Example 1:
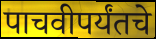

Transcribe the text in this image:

पाचवीपर्यंतचे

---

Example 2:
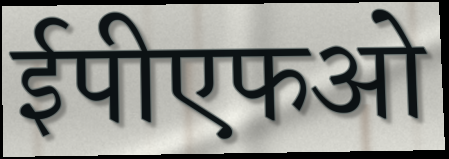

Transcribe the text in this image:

ईपीएफओ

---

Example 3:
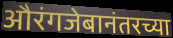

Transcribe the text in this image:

औरंगजेबानंतरच्या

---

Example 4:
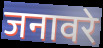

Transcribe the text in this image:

जनावरे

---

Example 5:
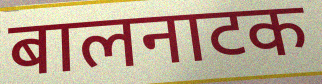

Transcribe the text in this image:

बालनाटक